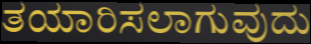
ತಯಾರಿಸಲಾಗುವುದು